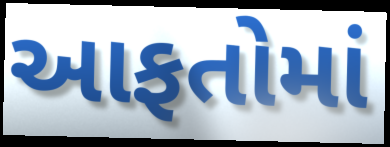
આફતોમાં